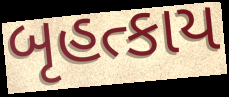
બૃહત્કાય